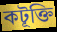
কটূক্তি